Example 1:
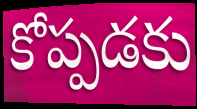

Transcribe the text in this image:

కోప్పడకు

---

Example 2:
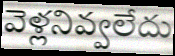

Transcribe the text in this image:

వెళ్లనివ్వలేదు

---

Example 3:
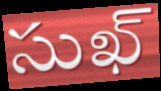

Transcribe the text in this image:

సుఖ్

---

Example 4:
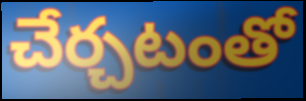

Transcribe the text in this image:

చేర్చటంతో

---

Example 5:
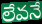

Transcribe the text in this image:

లేవనే